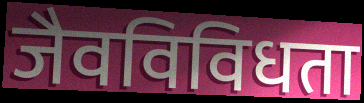
जैवविविधता